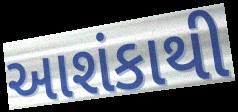
આશંકાથી